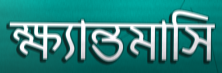
ক্ষ্যান্তমাসি